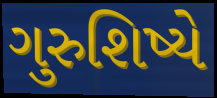
ગુરુશિષ્યે